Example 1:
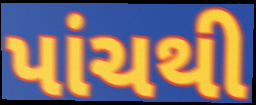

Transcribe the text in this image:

પાંચથી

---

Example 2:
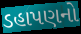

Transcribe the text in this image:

ડહાપણનો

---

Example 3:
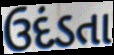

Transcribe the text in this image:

ઉદંડતા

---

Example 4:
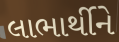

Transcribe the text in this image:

લાભાર્થીને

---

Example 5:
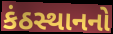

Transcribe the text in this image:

કંઠસ્થાનનો